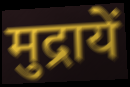
मुद्रायें